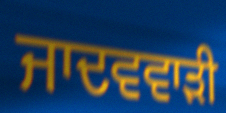
ਜਾਦਵਵਾੜੀ